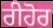
ਰੀਹੋਰ